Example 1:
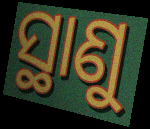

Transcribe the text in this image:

ସ୍ଥାଣୁ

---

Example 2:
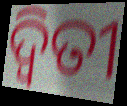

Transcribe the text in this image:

ଦ୍ୱିତୀ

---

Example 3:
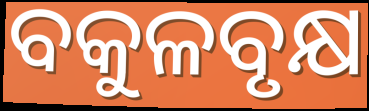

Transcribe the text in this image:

ବକୁଳବୃକ୍ଷ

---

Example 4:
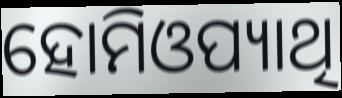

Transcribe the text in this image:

ହୋମିଓପ୍ୟାଥି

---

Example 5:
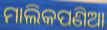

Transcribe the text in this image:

ମାଲିକପଣିଆ